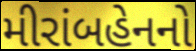
મીરાંબહેનનો